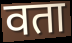
वता